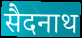
सैदनाथ